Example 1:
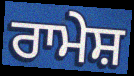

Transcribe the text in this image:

ਰਾਮੇਸ਼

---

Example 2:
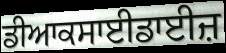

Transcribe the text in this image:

ਡੀਆਕਸਾਈਡਾਈਜ਼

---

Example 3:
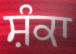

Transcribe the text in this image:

ਸ਼ੰਕਾ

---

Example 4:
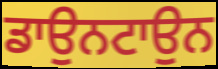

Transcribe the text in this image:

ਡਾਉਨਟਾਉਨ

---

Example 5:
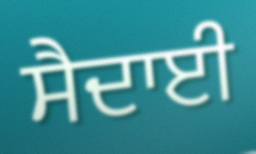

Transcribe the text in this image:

ਸੈਦਾਈ